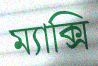
ম্যাক্সি